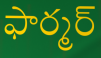
ఫార్మర్